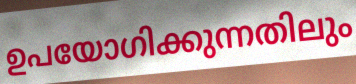
ഉപയോഗിക്കുന്നതിലും